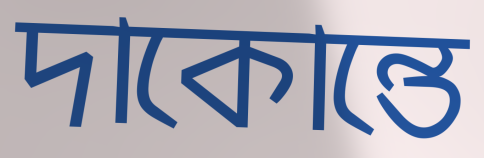
দাকোন্তে